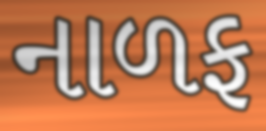
નાળફ